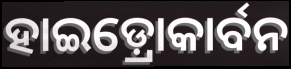
ହାଇଡ଼୍ରୋକାର୍ବନ